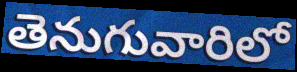
తెనుగువారిలో